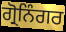
ਗ੍ਰੋਨਿੰਗਰ